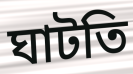
ঘাটতি